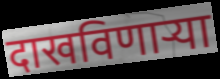
दाखविणाऱ्या